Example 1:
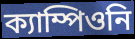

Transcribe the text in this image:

ক্যাম্পিওনি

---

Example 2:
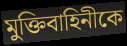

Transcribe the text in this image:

মুক্তিবাহিনীকে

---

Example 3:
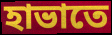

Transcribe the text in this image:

হাভাতে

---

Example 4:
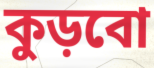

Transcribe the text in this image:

কুড়বো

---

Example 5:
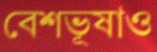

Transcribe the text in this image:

বেশভূষাও